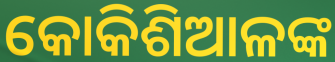
କୋକିଶିଆଳଙ୍କ